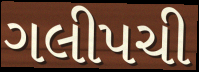
ગલીપચી